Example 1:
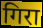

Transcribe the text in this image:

गिरा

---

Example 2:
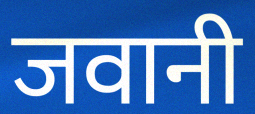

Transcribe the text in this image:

जवानी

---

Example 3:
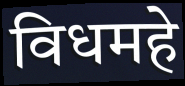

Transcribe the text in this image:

विधमहे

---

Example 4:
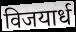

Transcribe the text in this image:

विजयार्ध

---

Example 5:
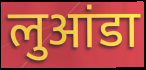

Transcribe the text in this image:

लुआंडा